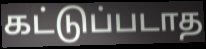
கட்டுப்படாத